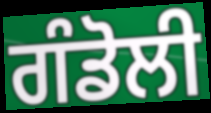
ਗੰਡੋਲੀ